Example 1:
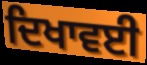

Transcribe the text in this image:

ਦਿਖਾਵਈ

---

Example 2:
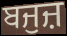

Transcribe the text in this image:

ਬਜੁਜ਼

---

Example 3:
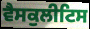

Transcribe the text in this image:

ਵੈਸਕੁਲੀਟਿਸ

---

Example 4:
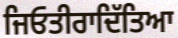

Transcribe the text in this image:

ਜਿਓਤੀਰਾਦਿੱਤਿਆ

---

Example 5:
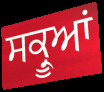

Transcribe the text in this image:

ਸਕ੍ਰੂਆਂ